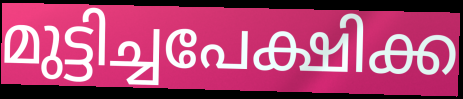
മുട്ടിച്ചപേക്ഷിക്ക